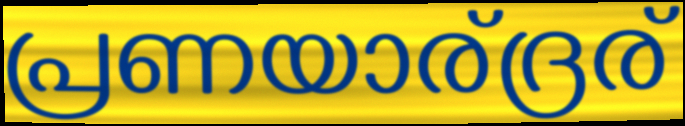
പ്രണയാര്ദ്രര്